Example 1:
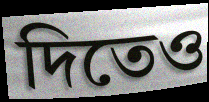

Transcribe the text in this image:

দিতেও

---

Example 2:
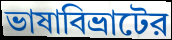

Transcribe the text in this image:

ভাষাবিভ্রাটের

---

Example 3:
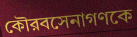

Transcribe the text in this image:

কৌরবসেনাগণকে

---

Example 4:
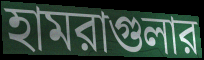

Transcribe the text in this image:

হামরাগুলার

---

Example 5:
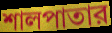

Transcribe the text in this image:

শালপাতার